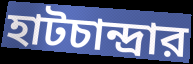
হাটচান্দ্রার